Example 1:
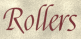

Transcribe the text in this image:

Rollers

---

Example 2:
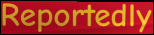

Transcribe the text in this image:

Reportedly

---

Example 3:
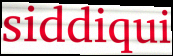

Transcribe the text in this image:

siddiqui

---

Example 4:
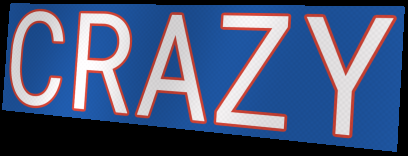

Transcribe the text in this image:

CRAZY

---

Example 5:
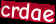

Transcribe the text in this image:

crdae